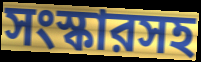
সংস্কারসহ